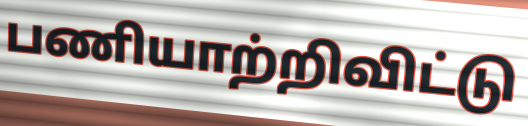
பணியாற்றிவிட்டு